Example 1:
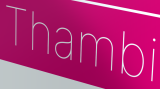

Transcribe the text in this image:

Thambi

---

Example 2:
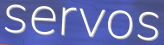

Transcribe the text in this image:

servos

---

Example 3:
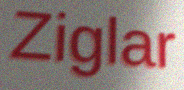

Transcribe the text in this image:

Ziglar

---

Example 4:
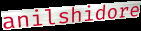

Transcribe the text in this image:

anilshidore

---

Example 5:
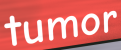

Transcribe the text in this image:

tumor